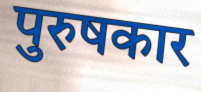
पुरुषकार